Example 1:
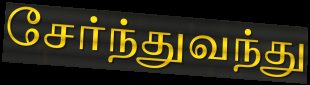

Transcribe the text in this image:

சேர்ந்துவந்து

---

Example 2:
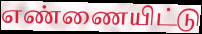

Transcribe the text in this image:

எண்ணையிட்டு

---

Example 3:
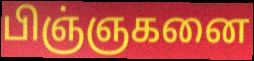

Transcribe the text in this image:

பிஞ்ஞகனை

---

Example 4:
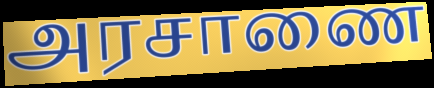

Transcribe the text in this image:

அரசாணை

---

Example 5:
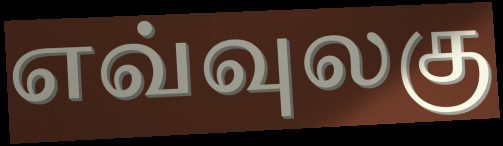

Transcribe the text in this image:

எவ்வுலகு